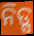
ନିଡ୍ସ